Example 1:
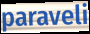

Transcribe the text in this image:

paraveli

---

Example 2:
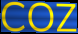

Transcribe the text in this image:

COZ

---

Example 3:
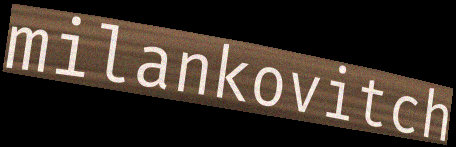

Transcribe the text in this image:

milankovitch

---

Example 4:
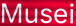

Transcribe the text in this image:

Musei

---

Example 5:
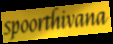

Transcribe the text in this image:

spoorthivana